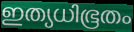
ഇത്യധിഭൂതം